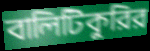
বালিটিকুরির